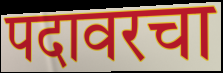
पदावरचा